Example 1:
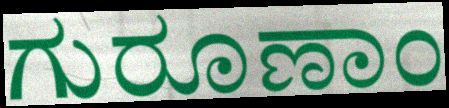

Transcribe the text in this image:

ಗುರೂಣಾಂ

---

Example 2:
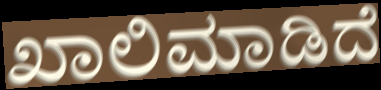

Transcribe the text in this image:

ಖಾಲಿಮಾಡಿದೆ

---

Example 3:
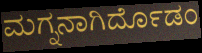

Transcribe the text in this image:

ಮಗ್ನನಾಗಿರ್ದೊಡಂ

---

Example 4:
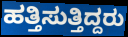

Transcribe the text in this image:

ಹತ್ತಿಸುತ್ತಿದ್ದರು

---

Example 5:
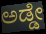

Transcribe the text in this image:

ಅಡ್ಡೇ